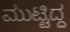
ಮುಟ್ಟಿದ್ದ